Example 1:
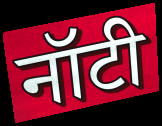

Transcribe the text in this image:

नॉटी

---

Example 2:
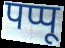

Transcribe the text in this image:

पप्पू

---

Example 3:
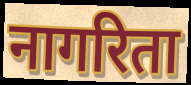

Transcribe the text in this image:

नागरिता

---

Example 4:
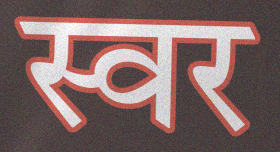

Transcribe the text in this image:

स्वर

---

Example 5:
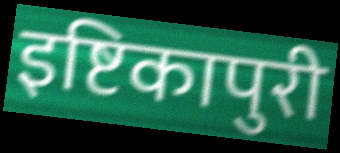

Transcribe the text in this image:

इष्टिकापुरी